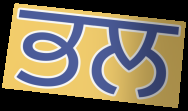
ਭਲ